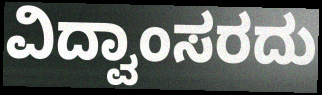
ವಿದ್ವಾಂಸರದು